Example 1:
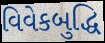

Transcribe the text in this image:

વિવેકબુદ્ધિ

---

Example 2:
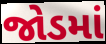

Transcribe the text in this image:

જોડમાં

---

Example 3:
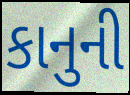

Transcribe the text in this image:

કાનુની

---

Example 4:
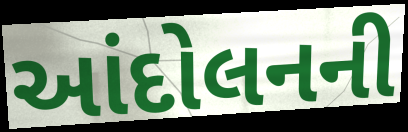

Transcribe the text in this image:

આંદોલનની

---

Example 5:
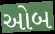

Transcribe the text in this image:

ઓબ